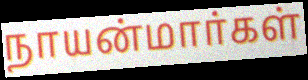
நாயன்மார்கள்